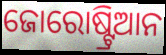
ଜୋରୋଷ୍ଟ୍ରିଆନ